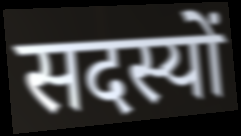
सदस्यों